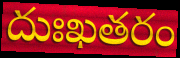
దుఃఖతరం